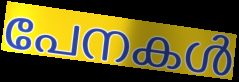
പേനകൾ